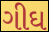
ગીઘ